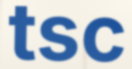
tsc